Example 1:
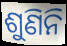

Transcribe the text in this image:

ଶୁଣିନି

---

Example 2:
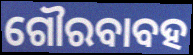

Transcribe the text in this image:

ଗୌରବାବହ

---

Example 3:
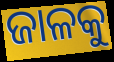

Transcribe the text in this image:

ଜାଳକୁ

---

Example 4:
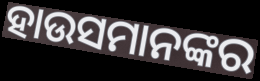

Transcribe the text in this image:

ହାଉସମାନଙ୍କର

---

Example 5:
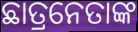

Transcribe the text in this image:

ଛାତ୍ରନେତାଙ୍କ